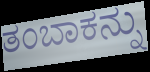
ತಂಬಾಕನ್ನು